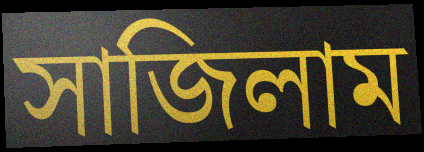
সাজিলাম